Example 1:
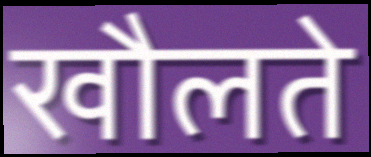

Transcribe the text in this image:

खौलते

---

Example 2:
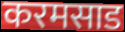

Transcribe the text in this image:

करमसाड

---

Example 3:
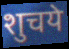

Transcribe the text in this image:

शुचये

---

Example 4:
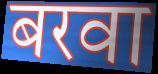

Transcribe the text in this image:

बरवा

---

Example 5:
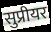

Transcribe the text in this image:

सुप्रीयर